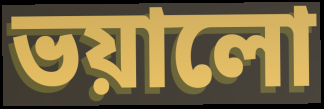
ভয়ালো